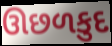
ઊછળકુદ